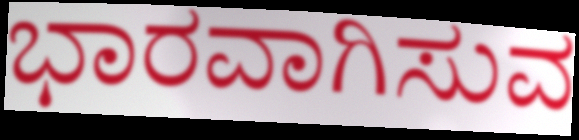
ಭಾರವಾಗಿಸುವ